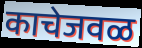
काचेजवळ